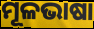
ମୂଳଭାଷା